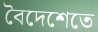
বৈদেশেতে